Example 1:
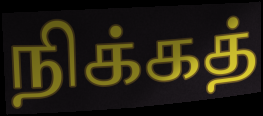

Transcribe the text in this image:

நிக்கத்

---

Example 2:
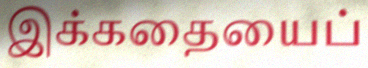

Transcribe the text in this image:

இக்கதையைப்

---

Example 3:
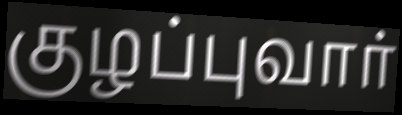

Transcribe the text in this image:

குழப்புவார்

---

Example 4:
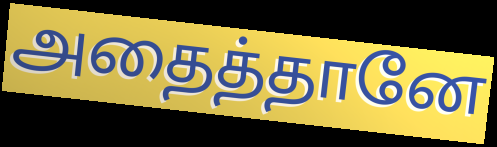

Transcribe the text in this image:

அதைத்தானே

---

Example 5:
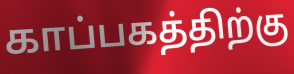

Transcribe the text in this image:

காப்பகத்திற்கு